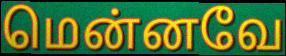
மென்னவே